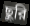
ছুরি